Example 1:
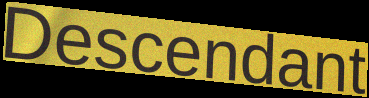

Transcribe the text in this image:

Descendant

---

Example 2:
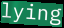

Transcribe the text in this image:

lying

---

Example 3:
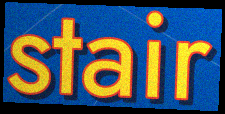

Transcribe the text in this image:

stair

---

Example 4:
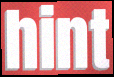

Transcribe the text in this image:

hint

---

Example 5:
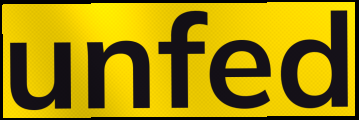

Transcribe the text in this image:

unfed